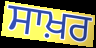
ਸਾਖ਼ਰ